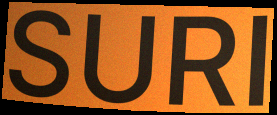
SURI